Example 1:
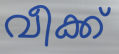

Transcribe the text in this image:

വീക്ക്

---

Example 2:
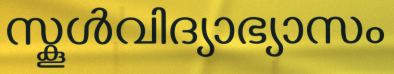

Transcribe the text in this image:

സ്കൂൾവിദ്യാഭ്യാസം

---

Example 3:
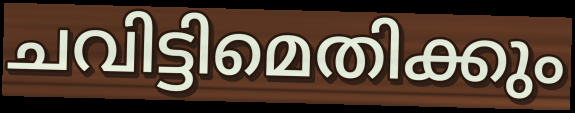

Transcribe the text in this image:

ചവിട്ടിമെതിക്കും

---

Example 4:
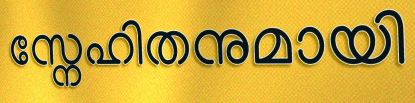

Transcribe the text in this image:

സ്നേഹിതനുമായി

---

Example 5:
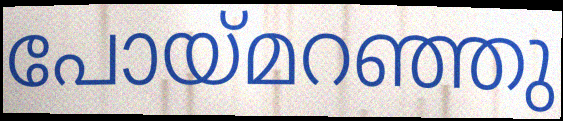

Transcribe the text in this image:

പോയ്മറഞ്ഞു